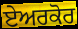
ਏਅਰਕੋਰ